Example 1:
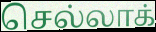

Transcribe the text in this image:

செல்லாக்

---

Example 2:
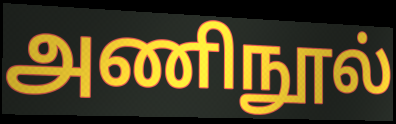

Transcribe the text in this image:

அணிநூல்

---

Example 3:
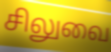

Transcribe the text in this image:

சிலுவை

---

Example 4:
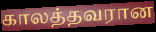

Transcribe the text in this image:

காலத்தவரான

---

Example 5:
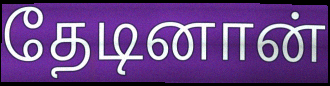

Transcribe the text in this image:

தேடினான்